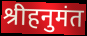
श्रीहनुमंत